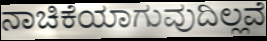
ನಾಚಿಕೆಯಾಗುವುದಿಲ್ಲವೆ